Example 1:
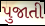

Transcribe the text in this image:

પુજાતી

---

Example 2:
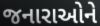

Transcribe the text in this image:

જનારાઓને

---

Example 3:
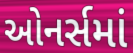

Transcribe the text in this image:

ઓનર્સમાં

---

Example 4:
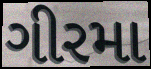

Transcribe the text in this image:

ગીરમા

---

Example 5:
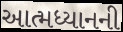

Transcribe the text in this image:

આત્મધ્યાનની